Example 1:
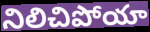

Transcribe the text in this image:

నిలిచిపోయా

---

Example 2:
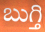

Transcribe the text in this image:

బుగ్తి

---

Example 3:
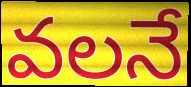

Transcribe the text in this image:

వలనే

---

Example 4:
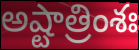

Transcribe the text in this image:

అష్టాత్రింశః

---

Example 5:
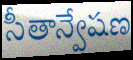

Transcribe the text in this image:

సీతాన్వేషణ